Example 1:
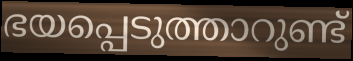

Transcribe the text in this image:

ഭയപ്പെടുത്താറുണ്ട്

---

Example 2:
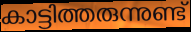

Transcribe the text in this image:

കാട്ടിത്തരുന്നുണ്ട്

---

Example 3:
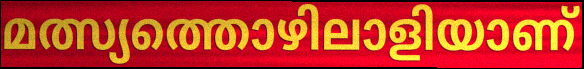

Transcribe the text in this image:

മത്സ്യത്തൊഴിലാളിയാണ്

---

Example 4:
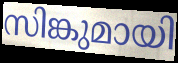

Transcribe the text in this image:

സിങ്കുമായി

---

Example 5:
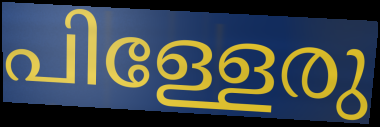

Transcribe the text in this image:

പിള്ളേരു